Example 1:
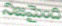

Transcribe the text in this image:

నిజమైంది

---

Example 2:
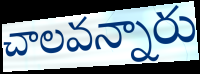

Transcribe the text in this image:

చాలవన్నారు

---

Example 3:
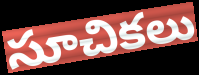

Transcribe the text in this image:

సూచికలు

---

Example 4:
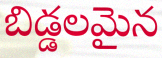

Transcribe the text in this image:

బిడ్డలమైన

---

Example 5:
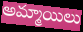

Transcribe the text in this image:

అమ్మాయిలు